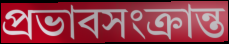
প্রভাবসংক্রান্ত